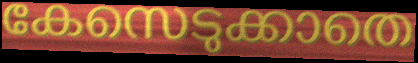
കേസെടുക്കാതെ